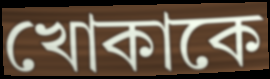
খোকাকে